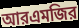
আরএমজির